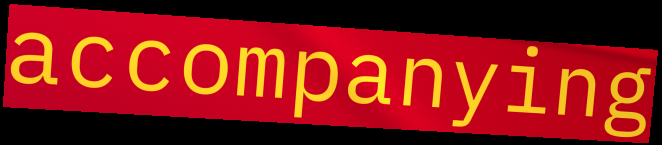
accompanying